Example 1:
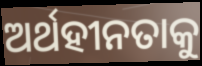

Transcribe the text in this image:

ଅର୍ଥହୀନତାକୁ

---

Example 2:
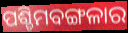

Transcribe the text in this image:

ପଶ୍ଚିମବଙ୍ଗଳାର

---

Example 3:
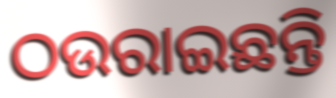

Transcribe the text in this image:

ଠଉରାଇଛନ୍ତି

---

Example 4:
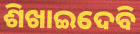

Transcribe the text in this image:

ଶିଖାଇଦେବି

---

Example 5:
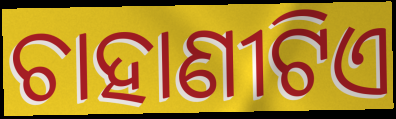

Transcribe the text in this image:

ଚାହାଣୀଟିଏ